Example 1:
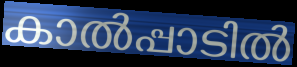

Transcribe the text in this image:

കാൽപ്പാടിൽ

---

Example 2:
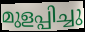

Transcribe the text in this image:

മുളപ്പിച്ചു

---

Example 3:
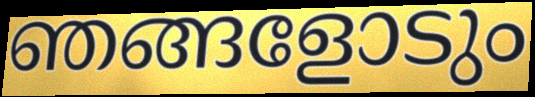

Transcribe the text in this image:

ഞങ്ങളോടും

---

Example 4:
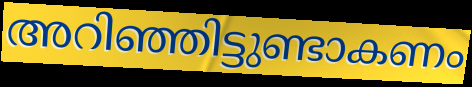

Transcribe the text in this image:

അറിഞ്ഞിട്ടുണ്ടാകണം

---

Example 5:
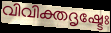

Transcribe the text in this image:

വിവിക്തദൃഷ്ടേഃ